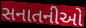
સનાતનીઓ